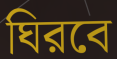
ঘিরবে